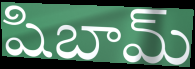
షిబామ్